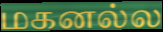
மகனல்ல